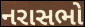
નરાસભો